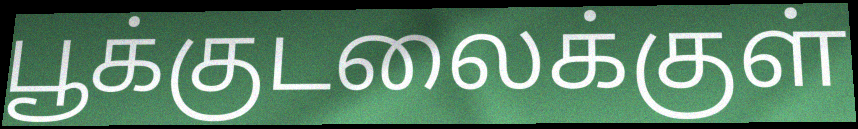
பூக்குடலைக்குள்